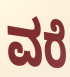
ವರೆ